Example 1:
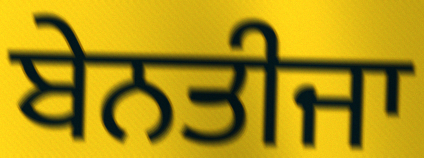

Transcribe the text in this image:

ਬੇਨਤੀਜਾ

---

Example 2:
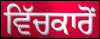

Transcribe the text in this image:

ਵਿੱਚਕਾਰੋਂ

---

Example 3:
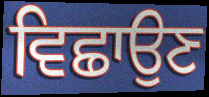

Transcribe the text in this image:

ਵਿਛਾਉਣ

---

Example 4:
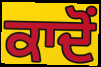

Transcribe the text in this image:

ਕਾਦੋਂ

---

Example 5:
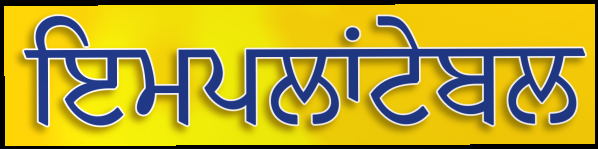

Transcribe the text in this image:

ਇਮਪਲਾਂਟੇਬਲ